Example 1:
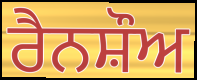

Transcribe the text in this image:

ਰੈਨਸ਼ੌਅ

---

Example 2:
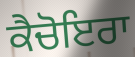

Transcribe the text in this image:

ਕੈਚੋਇਰਾ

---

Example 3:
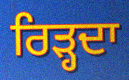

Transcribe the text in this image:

ਰਿੜ੍ਹਦਾ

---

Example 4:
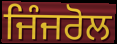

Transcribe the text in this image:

ਜਿੰਜਰੋਲ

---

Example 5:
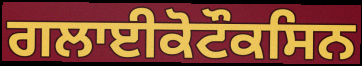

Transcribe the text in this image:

ਗਲਾਈਕੋਟੌਕਸਿਨ